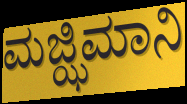
ಮಜ್ಝಿಮಾನಿ